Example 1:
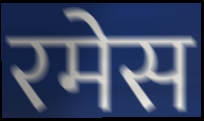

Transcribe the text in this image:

रमेस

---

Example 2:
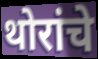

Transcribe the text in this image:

थोरांचे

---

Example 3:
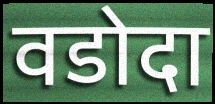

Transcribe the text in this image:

वडोदा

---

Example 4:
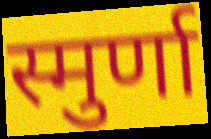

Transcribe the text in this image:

स्मुर्णा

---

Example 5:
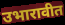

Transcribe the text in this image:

उभारावीत